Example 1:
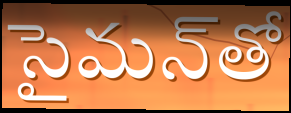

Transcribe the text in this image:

సైమన్‌తో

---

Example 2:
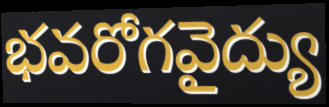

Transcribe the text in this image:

భవరోగవైద్యు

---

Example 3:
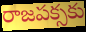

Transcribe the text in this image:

రాజపక్సకు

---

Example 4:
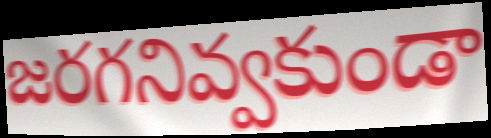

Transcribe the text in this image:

జరగనివ్వకుండా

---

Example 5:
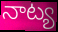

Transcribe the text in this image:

నాట్య